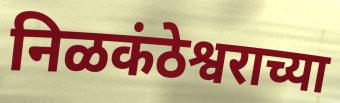
निळकंठेश्वराच्या